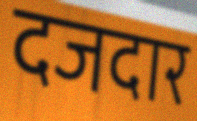
दजदार